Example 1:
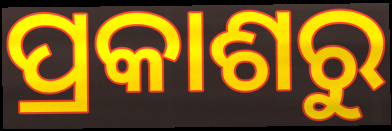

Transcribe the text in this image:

ପ୍ରକାଶରୁ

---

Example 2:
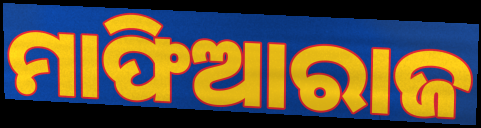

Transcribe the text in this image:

ମାଫିଆରାଜ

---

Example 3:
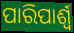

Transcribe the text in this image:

ପାରିପାର୍ଶ୍ୱ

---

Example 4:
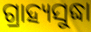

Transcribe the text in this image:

ଗ୍ରାହ୍ୟସୁଦ୍ଧା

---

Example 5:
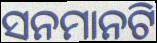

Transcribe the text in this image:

ସନମାନଟି